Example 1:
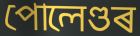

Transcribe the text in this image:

পোলেণ্ডৰ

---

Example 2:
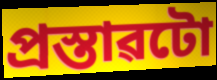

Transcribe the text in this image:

প্ৰস্তাৱটো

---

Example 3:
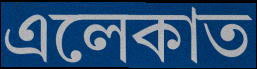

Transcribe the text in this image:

এলেকাত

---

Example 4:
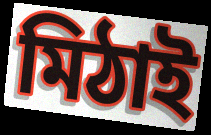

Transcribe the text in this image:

মিঠাই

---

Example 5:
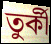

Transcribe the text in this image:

তুৰ্কী